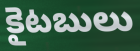
కైటబులు